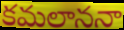
కమలాననా